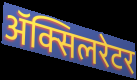
ॲक्सिलरेटर